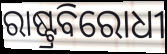
ରାଷ୍ଟ୍ରବିରୋଧୀ